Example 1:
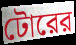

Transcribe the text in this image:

টোরের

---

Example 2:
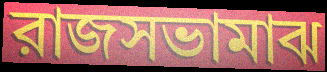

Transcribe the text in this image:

রাজসভামাঝ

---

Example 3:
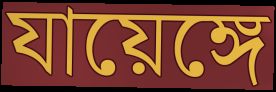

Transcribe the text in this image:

যায়েঙ্গে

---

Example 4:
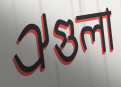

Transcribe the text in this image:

ঐগুলা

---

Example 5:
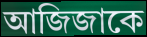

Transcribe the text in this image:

আজিজাকে